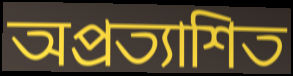
অপ্রত্যাশিত